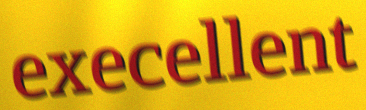
execellent